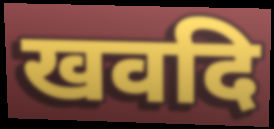
खवदि